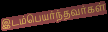
இடம்பெயர்ந்தவர்கள்